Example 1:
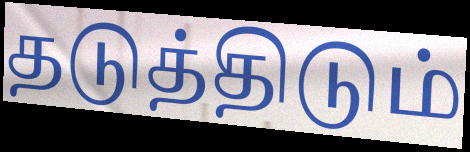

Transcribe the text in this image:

தடுத்திடும்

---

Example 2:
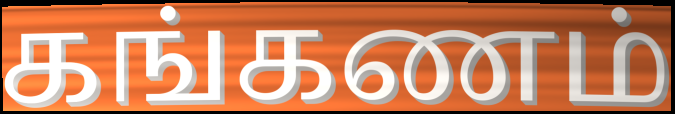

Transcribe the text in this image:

கங்கணம்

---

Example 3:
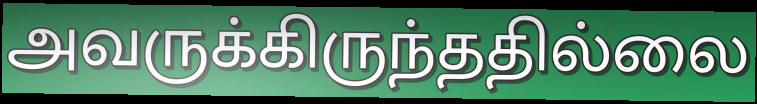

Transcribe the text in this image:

அவருக்கிருந்ததில்லை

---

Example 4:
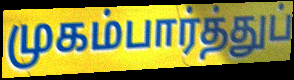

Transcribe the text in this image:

முகம்பார்த்துப்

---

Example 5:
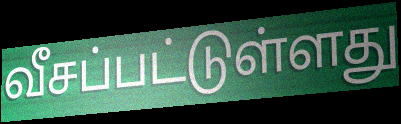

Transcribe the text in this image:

வீசப்பட்டுள்ளது